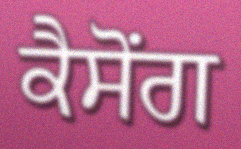
ਕੈਸੋਂਗ